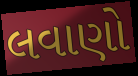
લવાણો